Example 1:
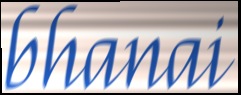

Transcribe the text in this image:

bhanai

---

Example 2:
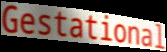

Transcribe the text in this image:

Gestational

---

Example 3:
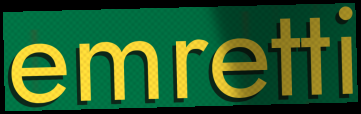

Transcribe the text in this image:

emretti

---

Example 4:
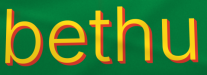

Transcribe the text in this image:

bethu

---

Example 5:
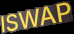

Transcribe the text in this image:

ISWAP